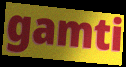
gamti